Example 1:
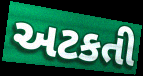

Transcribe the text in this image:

અટકતી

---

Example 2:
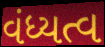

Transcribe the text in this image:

વંધ્યત્વ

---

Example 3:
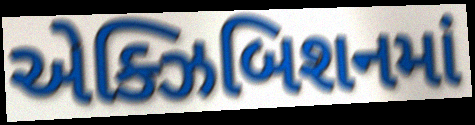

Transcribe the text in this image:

એક્ઝિબિશનમાં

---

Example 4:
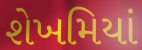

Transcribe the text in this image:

શેખમિયાં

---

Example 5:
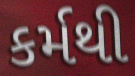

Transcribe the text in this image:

કર્મથી